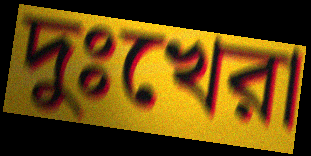
দুঃখেরা